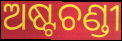
ଅଷ୍ଟଚଣ୍ଡୀ